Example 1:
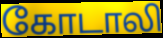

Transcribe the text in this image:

கோடாலி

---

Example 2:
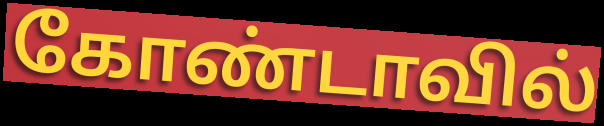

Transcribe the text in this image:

கோண்டாவில்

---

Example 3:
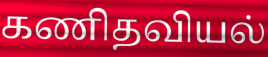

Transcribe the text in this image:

கணிதவியல்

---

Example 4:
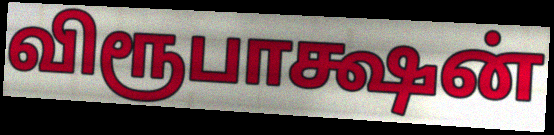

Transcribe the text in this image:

விரூபாக்ஷன்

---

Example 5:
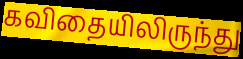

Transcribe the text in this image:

கவிதையிலிருந்து